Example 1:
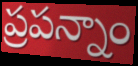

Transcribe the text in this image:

ప్రపన్నాం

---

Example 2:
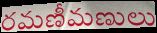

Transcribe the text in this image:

రమణీమణులు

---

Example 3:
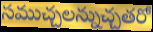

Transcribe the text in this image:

సముచ్చలన్నుచ్చతరో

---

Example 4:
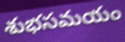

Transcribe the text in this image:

శుభసమయం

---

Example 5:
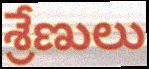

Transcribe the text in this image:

శ్రేణులు